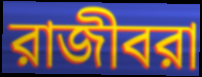
রাজীবরা